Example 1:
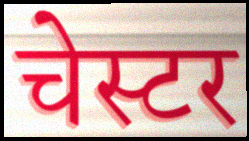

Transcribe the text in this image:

चेस्टर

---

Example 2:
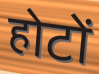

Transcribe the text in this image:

होटों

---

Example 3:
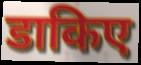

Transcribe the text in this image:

डाकिए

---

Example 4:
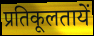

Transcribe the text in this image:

प्रतिकूलतायें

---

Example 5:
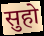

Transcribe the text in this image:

सुहो